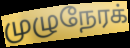
முழுநேரக்